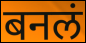
बनलं